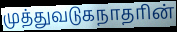
முத்துவடுகநாதரின்